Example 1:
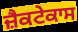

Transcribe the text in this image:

ਜ਼ੈਕਟੇਕਾਸ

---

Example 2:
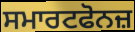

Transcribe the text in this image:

ਸਮਾਰਟਫੋਨਜ਼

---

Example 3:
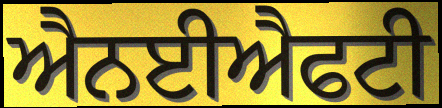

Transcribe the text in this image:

ਐਨਈਐਫਟੀ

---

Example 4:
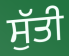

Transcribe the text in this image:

ਸੁੱਤੀ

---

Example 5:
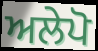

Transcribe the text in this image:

ਅਲੇਪੋ